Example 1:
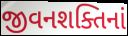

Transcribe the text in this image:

જીવનશક્તિનાં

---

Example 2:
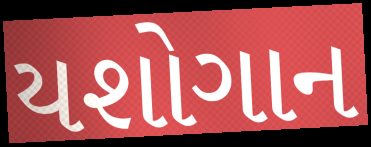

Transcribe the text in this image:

યશોગાન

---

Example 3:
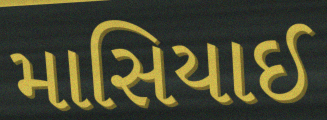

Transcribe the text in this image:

માસિયાઈ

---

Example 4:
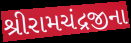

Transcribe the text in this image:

શ્રીરામચંદ્રજીના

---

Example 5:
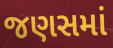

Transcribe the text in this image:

જણસમાં